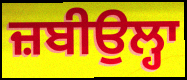
ਜ਼ਬੀਉਲ੍ਹਾ